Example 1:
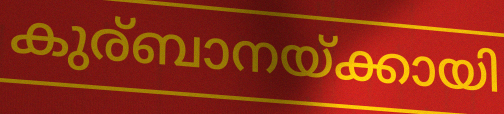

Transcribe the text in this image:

കുര്ബാനയ്ക്കായി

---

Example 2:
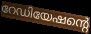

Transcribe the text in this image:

റേഡിയേഷന്റെ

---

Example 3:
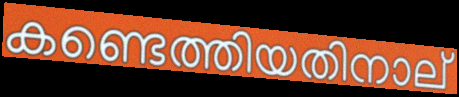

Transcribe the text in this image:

കണ്ടെത്തിയതിനാല്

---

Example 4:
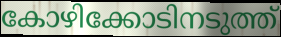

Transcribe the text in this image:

കോഴിക്കോടിനടുത്ത്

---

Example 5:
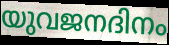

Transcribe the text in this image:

യുവജനദിനം